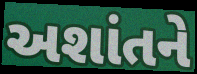
અશાંતને